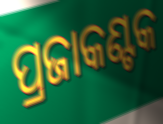
ପ୍ରଜାକଣ୍ଟକ